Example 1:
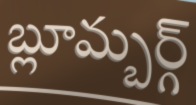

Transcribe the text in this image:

బ్లూమ్బర్గ్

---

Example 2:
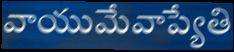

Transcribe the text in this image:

వాయుమేవాప్యేతి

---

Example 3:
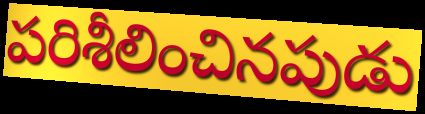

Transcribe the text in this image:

పరిశీలించినపుడు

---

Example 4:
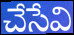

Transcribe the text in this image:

చేసేవి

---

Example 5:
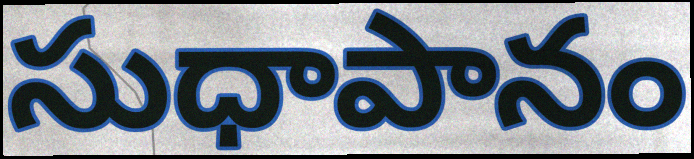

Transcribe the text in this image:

సుధాపానం